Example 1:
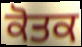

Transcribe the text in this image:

ਕੋਤਕ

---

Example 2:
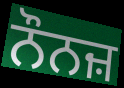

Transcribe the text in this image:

ਨੌਨਜ਼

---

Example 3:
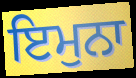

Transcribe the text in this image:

ਇਮੁਨਾ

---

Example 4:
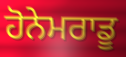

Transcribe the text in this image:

ਹੋਨੇਮਰਾਡੂ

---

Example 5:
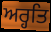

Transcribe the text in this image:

ਅਰ੍ਹਤਿ